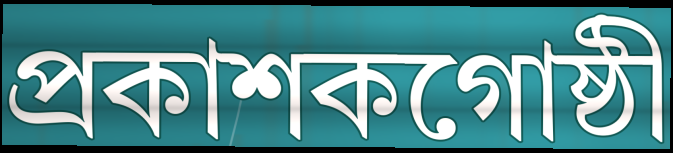
প্রকাশকগোষ্ঠী